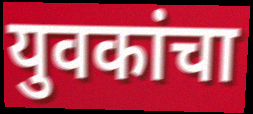
युवकांचा